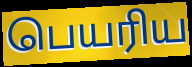
பெயரிய